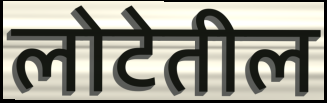
लोटेतील